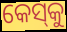
କେସ୍‌କୁ